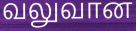
வலுவான